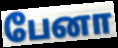
பேனா